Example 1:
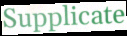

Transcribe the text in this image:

Supplicate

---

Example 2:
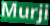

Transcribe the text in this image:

Murji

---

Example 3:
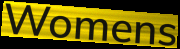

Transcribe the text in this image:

Womens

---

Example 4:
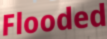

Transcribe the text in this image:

Flooded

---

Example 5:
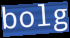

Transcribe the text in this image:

bolg